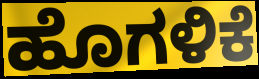
ಹೊಗಳಿಕೆ